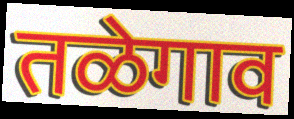
तळेगाव